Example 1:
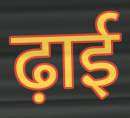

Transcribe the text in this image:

ढ़ाई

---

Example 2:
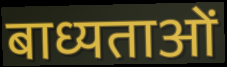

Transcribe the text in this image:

बाध्यताओं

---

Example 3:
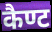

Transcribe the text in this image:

कैण्ट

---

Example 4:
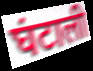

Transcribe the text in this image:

घंटाली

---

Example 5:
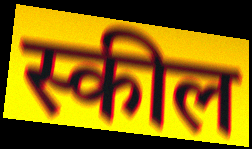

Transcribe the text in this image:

स्‍कील